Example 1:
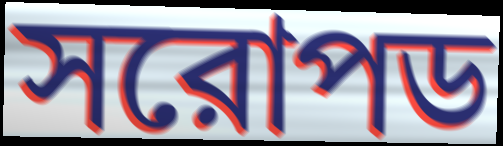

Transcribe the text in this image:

সরোপড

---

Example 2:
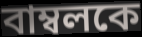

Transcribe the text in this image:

বাম্বলকে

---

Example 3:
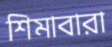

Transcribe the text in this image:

শিমাবারা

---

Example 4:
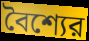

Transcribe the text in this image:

বৈশ্যের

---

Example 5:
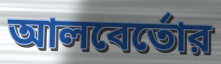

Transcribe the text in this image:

আলবের্তোর